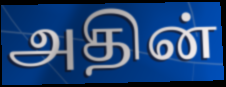
அதின்